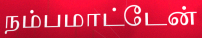
நம்பமாட்டேன்